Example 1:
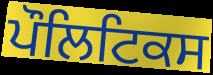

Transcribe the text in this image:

ਪੌਲਿਟਿਕਸ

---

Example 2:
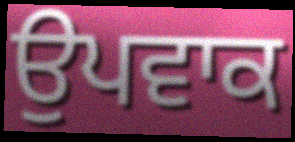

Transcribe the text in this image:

ਉਪਵਾਕ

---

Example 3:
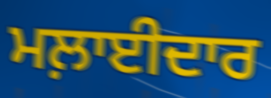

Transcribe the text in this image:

ਮਲ਼ਾਈਦਾਰ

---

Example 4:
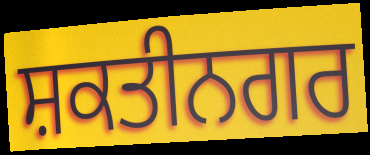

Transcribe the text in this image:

ਸ਼ਕਤੀਨਗਰ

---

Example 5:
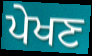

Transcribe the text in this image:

ਪੇਖਣ